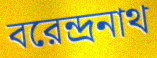
বরেন্দ্রনাথ